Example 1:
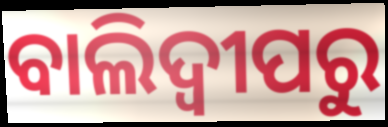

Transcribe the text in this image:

ବାଲିଦ୍ୱୀପରୁ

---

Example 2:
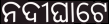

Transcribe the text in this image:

ନଦୀଘାଟେ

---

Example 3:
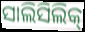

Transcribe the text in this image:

ସାଲିସିଲିକ୍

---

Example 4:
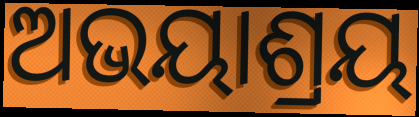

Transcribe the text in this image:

ଅଭୟାଶ୍ରୟ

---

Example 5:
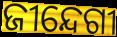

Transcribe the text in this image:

ଜୀନ୍ଦେଗୀ